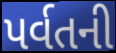
પર્વતની